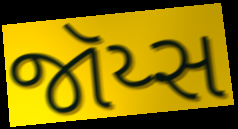
જૉય્સ